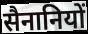
सैनानियों